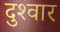
दुश्‍वार